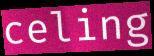
celing